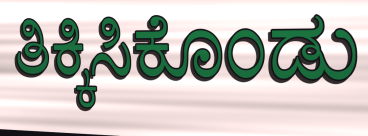
ತಿಕ್ಕಿಸಿಕೊಂಡು